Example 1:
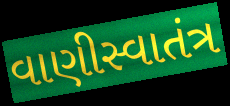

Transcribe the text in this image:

વાણીસ્વાતંત્ર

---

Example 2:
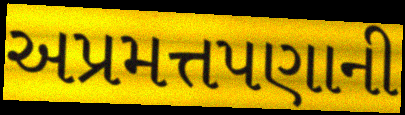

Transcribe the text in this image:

અપ્રમત્તપણાની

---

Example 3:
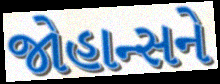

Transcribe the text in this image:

જોહાન્સને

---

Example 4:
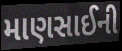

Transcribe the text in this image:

માણસાઈની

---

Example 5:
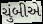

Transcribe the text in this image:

ચુંબીએ